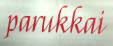
parukkai